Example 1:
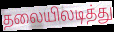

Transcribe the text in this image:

தலையிலடித்து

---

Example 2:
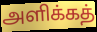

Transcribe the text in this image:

அளிக்கத்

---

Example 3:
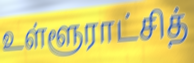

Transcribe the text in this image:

உள்ளூராட்சித்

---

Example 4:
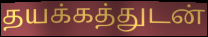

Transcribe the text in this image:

தயக்கத்துடன்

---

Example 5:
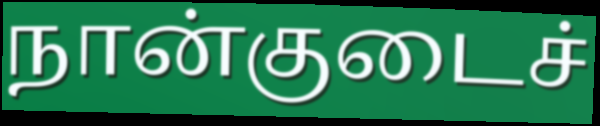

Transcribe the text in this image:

நான்குடைச்